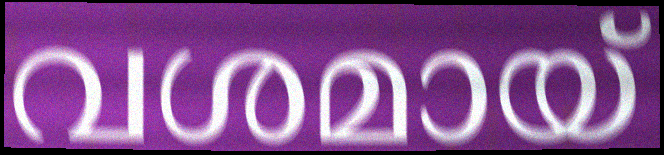
വശമായ്